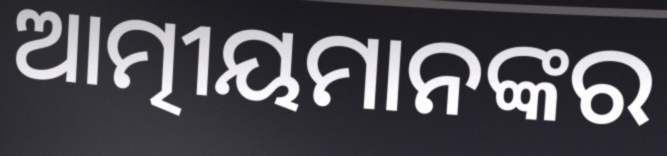
ଆତ୍ମୀୟମାନଙ୍କର